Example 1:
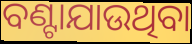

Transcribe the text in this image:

ବଣ୍ଟାଯାଉଥିବା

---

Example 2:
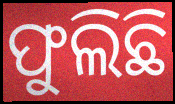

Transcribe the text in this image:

ଫୁଲିଛି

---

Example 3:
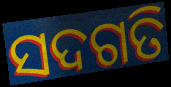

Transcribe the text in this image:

ସଦଗତି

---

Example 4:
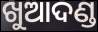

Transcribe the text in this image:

ଖୁଆଦଣ୍ଡ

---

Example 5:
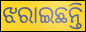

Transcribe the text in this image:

ଝରାଇଛନ୍ତି